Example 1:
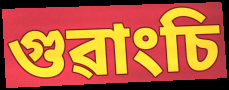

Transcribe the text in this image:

গুৱাংচি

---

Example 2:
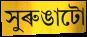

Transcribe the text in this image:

সুৰুঙাটো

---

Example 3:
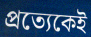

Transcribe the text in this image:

প্ৰত্যেকেই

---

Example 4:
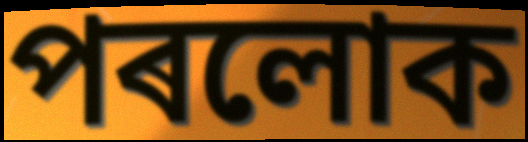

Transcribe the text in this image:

পৰলোক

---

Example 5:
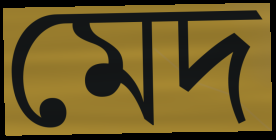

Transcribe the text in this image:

মেদ